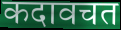
कदावचत